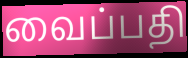
வைப்பதி